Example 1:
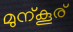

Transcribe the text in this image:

മുന്കൂര്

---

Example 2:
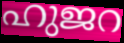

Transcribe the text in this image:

ഹുജറ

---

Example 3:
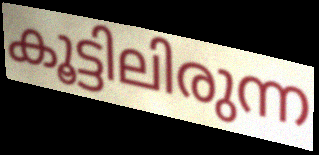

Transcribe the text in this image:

കൂട്ടിലിരുന്ന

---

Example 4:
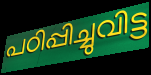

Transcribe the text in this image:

പഠിപ്പിച്ചുവിട്ട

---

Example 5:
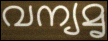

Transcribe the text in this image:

വന്യമൃ